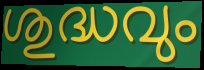
ശുദ്ധവും